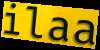
ilaa